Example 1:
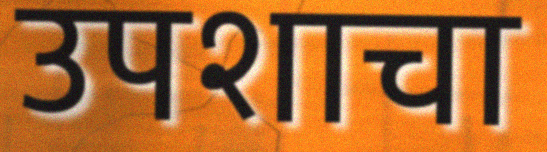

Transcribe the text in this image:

उपशाचा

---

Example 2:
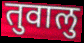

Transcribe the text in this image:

तुवालु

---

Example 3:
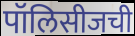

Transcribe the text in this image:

पॉलिसीजची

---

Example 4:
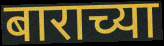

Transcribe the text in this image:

बाराच्या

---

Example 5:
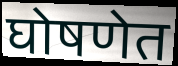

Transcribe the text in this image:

घोषणेत